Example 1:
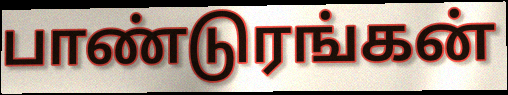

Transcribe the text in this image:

பாண்டுரங்கன்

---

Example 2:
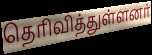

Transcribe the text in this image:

தெரிவித்துள்ளனர்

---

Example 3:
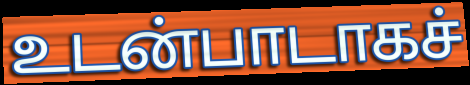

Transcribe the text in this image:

உடன்பாடாகச்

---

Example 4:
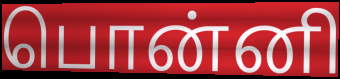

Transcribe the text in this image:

பொன்னி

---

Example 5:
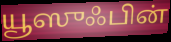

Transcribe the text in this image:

யூஸுஃபின்